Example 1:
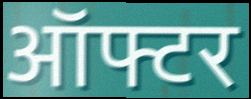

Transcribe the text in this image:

ऑफ्टर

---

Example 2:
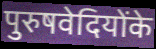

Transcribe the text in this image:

पुरुषवेदियोंके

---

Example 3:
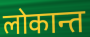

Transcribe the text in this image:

लोकान्त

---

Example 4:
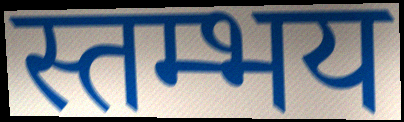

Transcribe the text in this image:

स्तम्भय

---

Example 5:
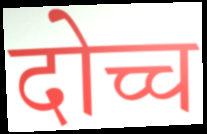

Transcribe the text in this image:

दोच्च